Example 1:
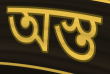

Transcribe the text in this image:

অস্ত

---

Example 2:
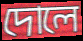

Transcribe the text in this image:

দোলে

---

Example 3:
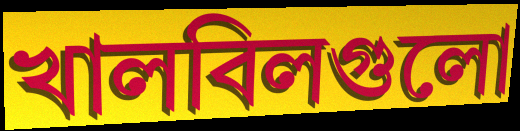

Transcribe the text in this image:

খালবিলগুলো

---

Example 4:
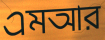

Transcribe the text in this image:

এমআর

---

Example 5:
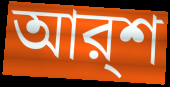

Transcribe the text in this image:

আর্‌শ